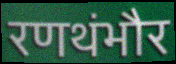
रणथंभौर